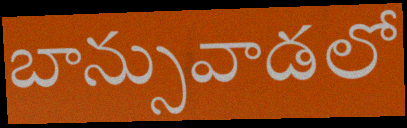
బాన్సువాడలో